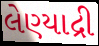
લેણ્યાદ્રી